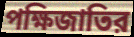
পক্ষিজাতির